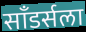
साँडर्सला